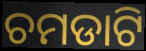
ଚମଡାଟି